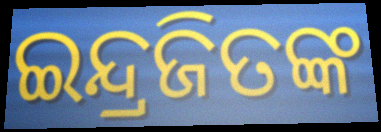
ଇନ୍ଦ୍ରଜିତଙ୍କ